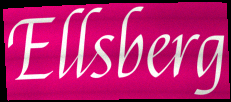
Ellsberg